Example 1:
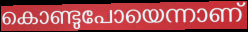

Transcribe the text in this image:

കൊണ്ടുപോയെന്നാണ്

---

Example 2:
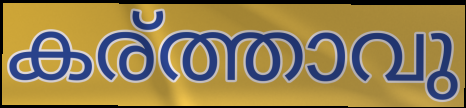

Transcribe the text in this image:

കര്ത്താവു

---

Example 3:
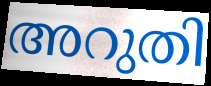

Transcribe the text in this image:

അറുതി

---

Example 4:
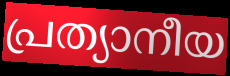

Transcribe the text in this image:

പ്രത്യാനീയ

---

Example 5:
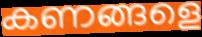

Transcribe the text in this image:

കണങ്ങളെ